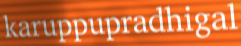
karuppupradhigal